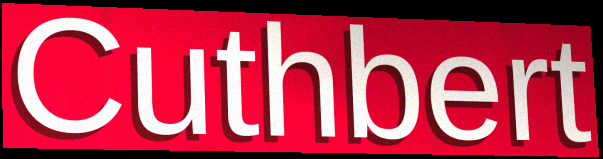
Cuthbert